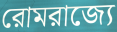
রোমরাজ্যে